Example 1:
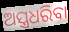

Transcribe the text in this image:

ଅସ୍ତ୍ରଧରିବା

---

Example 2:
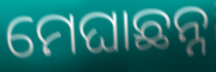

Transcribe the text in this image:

ମେଘାଛନ୍ନ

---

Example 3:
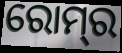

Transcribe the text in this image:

ରୋମ୍‌ର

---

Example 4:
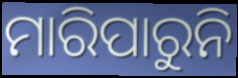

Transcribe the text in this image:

ମାରିପାରୁନି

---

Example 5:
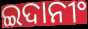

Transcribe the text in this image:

ଇଦାନୀଂ